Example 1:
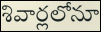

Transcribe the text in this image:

శివార్లలోనూ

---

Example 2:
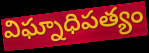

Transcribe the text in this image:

విఘ్నాధిపత్యం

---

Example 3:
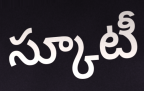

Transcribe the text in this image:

స్కూటీ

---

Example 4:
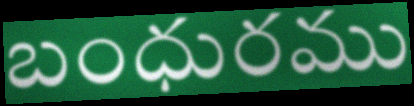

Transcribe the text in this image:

బంధురము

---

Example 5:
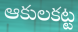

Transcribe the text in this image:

ఆకులకట్ట